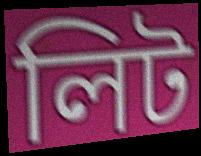
লিট